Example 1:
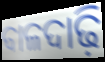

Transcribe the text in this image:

ବାଳଦାଢ଼ି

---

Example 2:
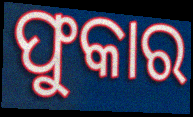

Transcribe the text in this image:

ଫୁକାର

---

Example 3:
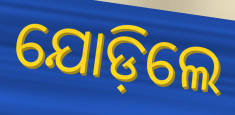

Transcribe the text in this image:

ଯୋଡ଼ିଲେ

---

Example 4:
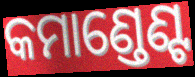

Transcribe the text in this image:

କମାଣ୍ଡେଣ୍ଟ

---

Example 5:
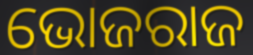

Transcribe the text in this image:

ଭୋଜରାଜ